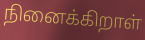
நினைக்கிறாள்